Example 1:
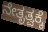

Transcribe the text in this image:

ನೇತೃತ್ವಕ್ಕೆ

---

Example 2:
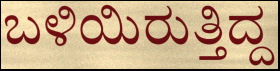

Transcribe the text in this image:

ಬಳಿಯಿರುತ್ತಿದ್ದ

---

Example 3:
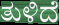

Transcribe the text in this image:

ತುಳಿದೆ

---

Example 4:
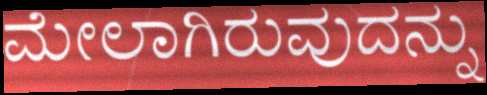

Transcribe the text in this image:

ಮೇಲಾಗಿರುವುದನ್ನು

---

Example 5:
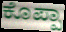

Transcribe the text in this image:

ಕೊಪ್ಪಾ